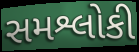
સમશ્લોકી